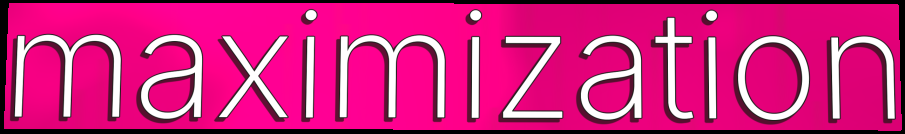
maximization